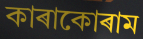
কাৰাকোৰাম